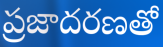
ప్రజాదరణతో